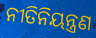
ନୀତିନିୟନ୍ତ୍ରଣ